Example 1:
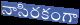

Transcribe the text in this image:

నాసిరకంగా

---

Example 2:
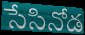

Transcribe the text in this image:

సేసినోడ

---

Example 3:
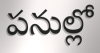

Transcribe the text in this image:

పనుల్లో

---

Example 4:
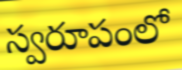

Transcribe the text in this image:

స్వరూపంలో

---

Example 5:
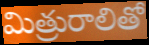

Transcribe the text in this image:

మిత్రురాలితో